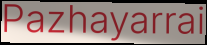
Pazhayarrai